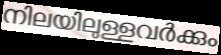
നിലയിലുള്ളവർക്കും